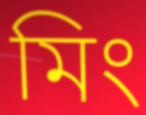
মিং